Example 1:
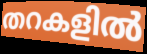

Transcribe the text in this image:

തറകളിൽ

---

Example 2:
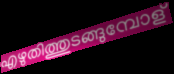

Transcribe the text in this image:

എഴുതിത്തുടങ്ങുമ്പോള്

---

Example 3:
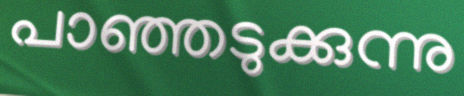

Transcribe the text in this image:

പാഞ്ഞടുക്കുന്നു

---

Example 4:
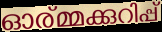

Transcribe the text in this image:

ഓര്മ്മക്കുറിപ്പ്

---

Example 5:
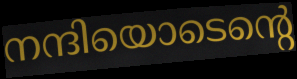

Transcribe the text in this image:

നന്ദിയൊടെന്റെ